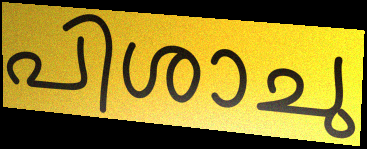
പിശാചു